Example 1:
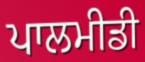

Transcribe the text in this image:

ਪਾਲਮੀਡੀ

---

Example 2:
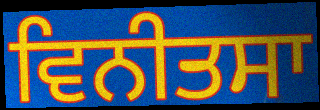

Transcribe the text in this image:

ਵਿਨੀਤਸਾ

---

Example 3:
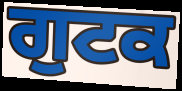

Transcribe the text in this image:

ਗੁਟਕ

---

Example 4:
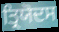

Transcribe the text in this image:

ਤ੍ਰਿਯੋਦਸ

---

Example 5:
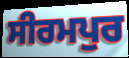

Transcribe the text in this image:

ਸੀਰਮਪੁਰ